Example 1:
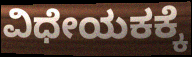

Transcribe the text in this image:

ವಿಧೇಯಕಕ್ಕೆ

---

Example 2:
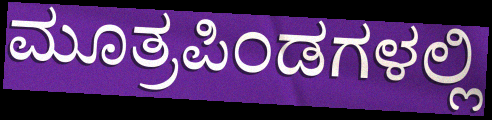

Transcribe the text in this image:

ಮೂತ್ರಪಿಂಡಗಳಲ್ಲಿ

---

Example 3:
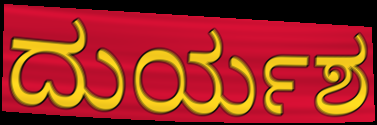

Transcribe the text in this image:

ದುರ್ಯಶ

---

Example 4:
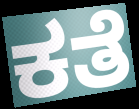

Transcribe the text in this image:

ಕತೆ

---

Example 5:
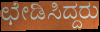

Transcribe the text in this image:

ಛೇಡಿಸಿದ್ದರು